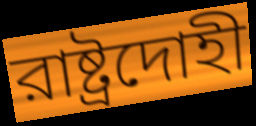
রাষ্ট্রদোহী